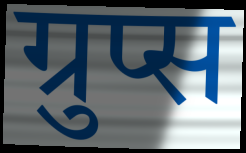
ग्रुप्स